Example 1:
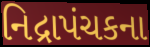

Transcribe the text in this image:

નિદ્રાપંચકના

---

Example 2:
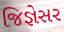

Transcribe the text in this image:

જિજ્ઞેસર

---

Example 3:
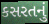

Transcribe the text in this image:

કસરતનું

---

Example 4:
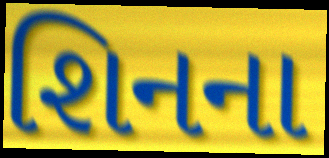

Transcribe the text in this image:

શિનના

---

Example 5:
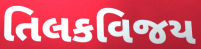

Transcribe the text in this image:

તિલકવિજય